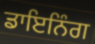
ਡਾਇਨਿੰਗ